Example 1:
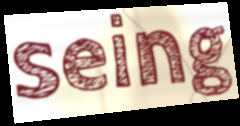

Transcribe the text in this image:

seing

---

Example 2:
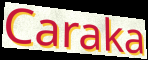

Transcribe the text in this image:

Caraka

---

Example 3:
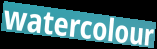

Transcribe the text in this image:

watercolour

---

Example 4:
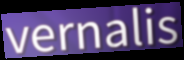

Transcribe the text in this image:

vernalis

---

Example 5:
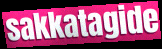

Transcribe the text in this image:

sakkatagide